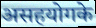
असहयोगके